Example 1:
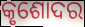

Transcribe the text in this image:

କୃଶୋଦର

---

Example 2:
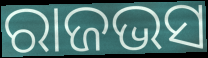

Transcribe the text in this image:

ରାଜଭସ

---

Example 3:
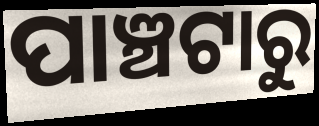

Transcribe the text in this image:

ପାଞ୍ଚଟାରୁ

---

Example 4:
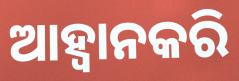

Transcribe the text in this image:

ଆହ୍ୱାନକରି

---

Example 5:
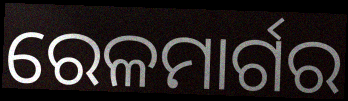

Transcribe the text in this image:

ରେଳମାର୍ଗର